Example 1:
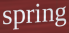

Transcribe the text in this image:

spring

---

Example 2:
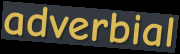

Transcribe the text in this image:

adverbial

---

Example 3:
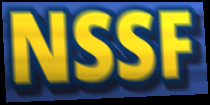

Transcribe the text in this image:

NSSF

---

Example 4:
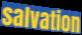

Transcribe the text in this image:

salvation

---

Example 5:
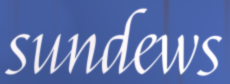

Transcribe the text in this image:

sundews